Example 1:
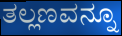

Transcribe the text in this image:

ತಲ್ಲಣವನ್ನೂ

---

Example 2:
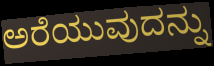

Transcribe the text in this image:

ಅರೆಯುವುದನ್ನು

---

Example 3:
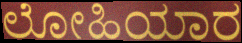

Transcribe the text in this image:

ಲೋಹಿಯಾರ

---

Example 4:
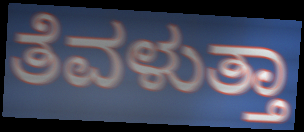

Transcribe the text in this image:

ತೆವಳುತ್ತಾ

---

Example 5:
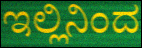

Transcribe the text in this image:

ಇಲ್ಲಿನಿಂದ